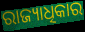
ରାଜ୍ୟାଧିକାର